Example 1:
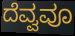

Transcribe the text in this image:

ದೆವ್ವವೂ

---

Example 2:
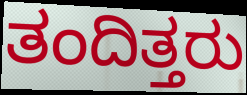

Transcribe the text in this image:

ತಂದಿತ್ತರು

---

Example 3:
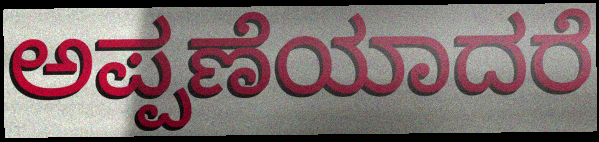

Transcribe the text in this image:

ಅಪ್ಪಣೆಯಾದರೆ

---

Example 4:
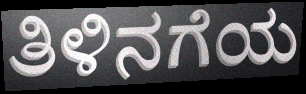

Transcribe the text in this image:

ತಿಳಿನಗೆಯ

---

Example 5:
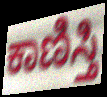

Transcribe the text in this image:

ಕಾಣಿಸ್ತಿ